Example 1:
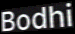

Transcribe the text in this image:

Bodhi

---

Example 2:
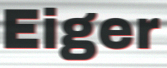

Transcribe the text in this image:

Eiger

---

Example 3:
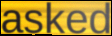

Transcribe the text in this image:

asked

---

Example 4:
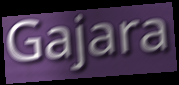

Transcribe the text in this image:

Gajara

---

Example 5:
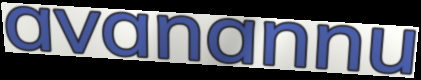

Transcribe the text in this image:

avanannu